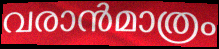
വരാൻമാത്രം